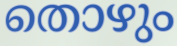
തൊഴും